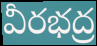
వీరభద్ర